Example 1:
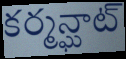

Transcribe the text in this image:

కర్మన్ఘాట్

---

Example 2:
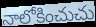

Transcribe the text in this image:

నాలోకించుచు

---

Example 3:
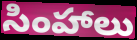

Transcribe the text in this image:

సింహాలు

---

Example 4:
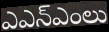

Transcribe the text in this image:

ఎఎన్ఎంలు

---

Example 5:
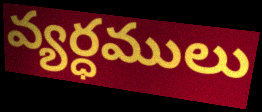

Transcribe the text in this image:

వ్యర్ధములు